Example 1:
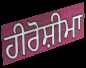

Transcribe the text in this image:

ਹੀਰੋਸ਼ੀਮਾ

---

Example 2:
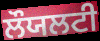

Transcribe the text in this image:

ਲੌਯਲਟੀ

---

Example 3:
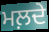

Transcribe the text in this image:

ਮਲ਼ਦੇ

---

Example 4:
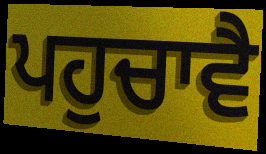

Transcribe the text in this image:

ਪਹੁਚਾਵੈ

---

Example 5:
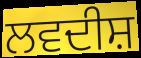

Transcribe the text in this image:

ਲਵਦੀਸ਼